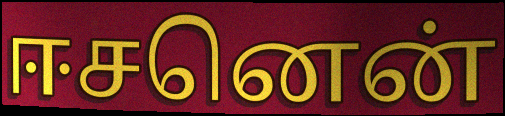
ஈசனென்